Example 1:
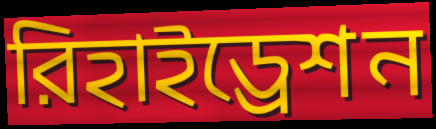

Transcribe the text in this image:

রিহাইড্রেশন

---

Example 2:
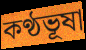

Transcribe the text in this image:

কণ্ঠভূষা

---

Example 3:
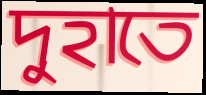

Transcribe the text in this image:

দুহাতে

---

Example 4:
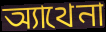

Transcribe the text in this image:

অ্যাথেনা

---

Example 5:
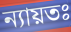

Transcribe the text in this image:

ন্যায়তঃ